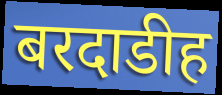
बरदाडीह